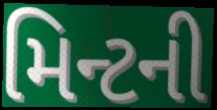
મિન્ટની